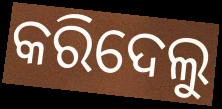
କରିଦେଲୁ